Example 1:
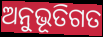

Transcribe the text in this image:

ଅନୁଭୂତିଗତ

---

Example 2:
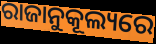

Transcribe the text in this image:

ରାଜାନୁକୂଲ୍ୟରେ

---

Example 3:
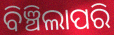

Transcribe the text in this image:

ବିଞ୍ଚିଲାପରି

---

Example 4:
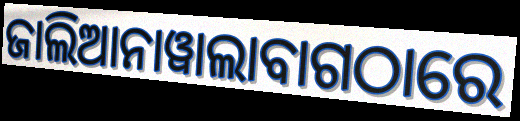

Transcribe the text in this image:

ଜାଲିଆନାୱାଲାବାଗଠାରେ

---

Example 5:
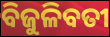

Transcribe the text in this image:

ବିଜୁଳିବତୀ